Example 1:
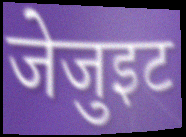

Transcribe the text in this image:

जेजुइट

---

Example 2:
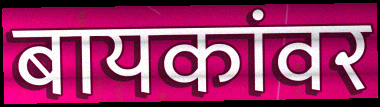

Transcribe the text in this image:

बायकांवर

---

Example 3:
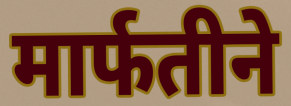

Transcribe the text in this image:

मार्फतीने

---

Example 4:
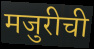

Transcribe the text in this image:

मजुरीची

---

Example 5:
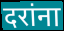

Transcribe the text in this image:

दरांना